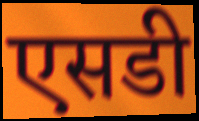
एसडी